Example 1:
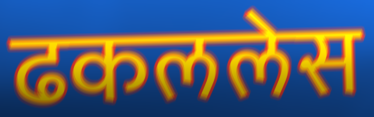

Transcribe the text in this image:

ढकललेस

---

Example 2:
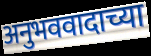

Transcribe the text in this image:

अनुभववादाच्या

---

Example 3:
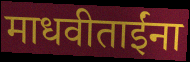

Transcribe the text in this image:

माधवीताईंना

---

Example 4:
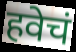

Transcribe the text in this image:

हवेचं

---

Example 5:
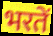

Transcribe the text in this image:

भरतें